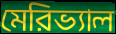
মেরিভ্যাল